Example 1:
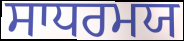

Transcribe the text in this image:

ਸਾਧਰਮਯ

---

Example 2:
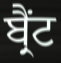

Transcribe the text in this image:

ਬ੍ਰੈਂਟ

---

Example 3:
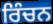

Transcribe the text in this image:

ਰਿੰਚਨ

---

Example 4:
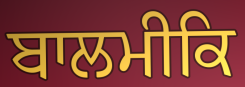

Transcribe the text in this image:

ਬਾਲਮੀਕਿ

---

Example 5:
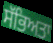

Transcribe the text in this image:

ਸੱਭਿਅਤਾ